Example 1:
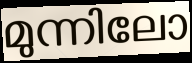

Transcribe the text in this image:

മുന്നിലോ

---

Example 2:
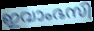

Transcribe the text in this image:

ഇവാംഭസി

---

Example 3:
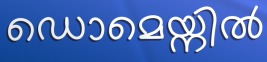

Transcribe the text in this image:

ഡൊമെയ്നിൽ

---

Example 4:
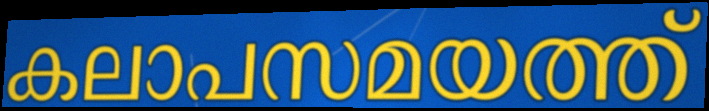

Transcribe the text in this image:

കലാപസമയത്ത്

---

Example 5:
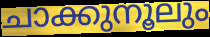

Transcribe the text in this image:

ചാക്കുനൂലും